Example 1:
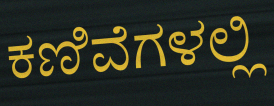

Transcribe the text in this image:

ಕಣಿವೆಗಳಲ್ಲಿ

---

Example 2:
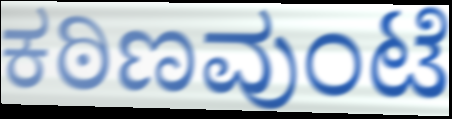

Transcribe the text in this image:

ಕಠಿಣವುಂಟೆ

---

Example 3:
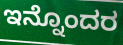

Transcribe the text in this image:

ಇನ್ನೊಂದರ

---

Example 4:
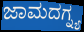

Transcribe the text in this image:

ಜಾಮದಗ್ನ್ಯ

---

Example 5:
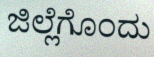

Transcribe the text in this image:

ಜಿಲ್ಲೆಗೊಂದು